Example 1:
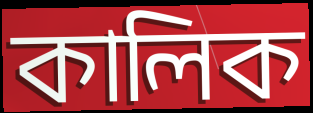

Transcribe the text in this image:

কালিক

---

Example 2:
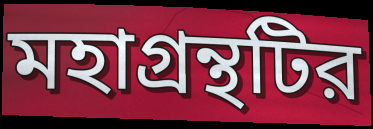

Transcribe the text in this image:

মহাগ্রন্থটির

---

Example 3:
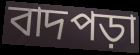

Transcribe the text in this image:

বাদপড়া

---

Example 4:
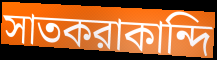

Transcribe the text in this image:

সাতকরাকান্দি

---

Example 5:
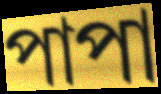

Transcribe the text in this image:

পাপা